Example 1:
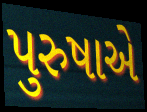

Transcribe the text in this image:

પુરુષાએ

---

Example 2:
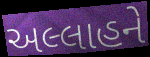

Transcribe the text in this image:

અલ્લાહને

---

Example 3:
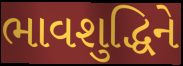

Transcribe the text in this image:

ભાવશુદ્ધિને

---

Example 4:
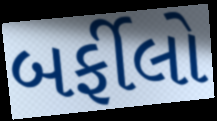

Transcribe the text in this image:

બર્ફીલો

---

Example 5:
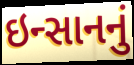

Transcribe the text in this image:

ઇન્સાનનું